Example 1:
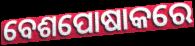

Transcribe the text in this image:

ବେଶପୋଷାକରେ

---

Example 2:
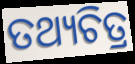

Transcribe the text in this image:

ତଥ୍ୟଚିତ୍ର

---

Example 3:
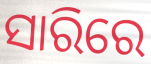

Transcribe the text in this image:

ସାରିରେ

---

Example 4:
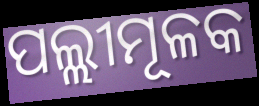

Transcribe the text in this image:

ପଲ୍ଲୀମୂଳକ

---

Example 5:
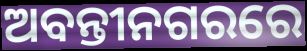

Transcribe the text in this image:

ଅବନ୍ତୀନଗରରେ